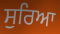
ਸੁਰਿਆ